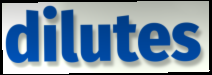
dilutes